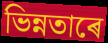
ভিন্নতাৰে